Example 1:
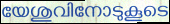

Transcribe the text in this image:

യേശുവിനോടുകൂടെ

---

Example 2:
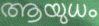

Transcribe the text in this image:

ആയുധം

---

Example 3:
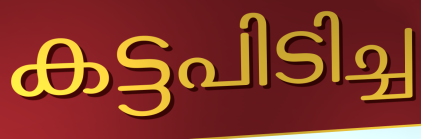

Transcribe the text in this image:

കട്ടപിടിച്ച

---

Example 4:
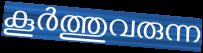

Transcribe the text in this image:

കൂർത്തുവരുന്ന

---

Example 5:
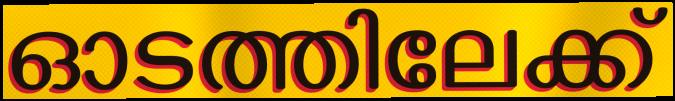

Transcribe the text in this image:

ഓടത്തിലേക്ക്